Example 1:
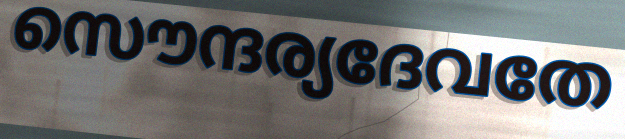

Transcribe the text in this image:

സൌന്ദര്യദേവതേ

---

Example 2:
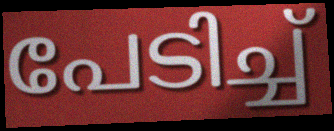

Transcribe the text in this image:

പേടിച്ച്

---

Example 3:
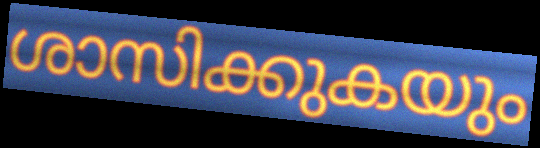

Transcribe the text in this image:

ശാസിക്കുകയും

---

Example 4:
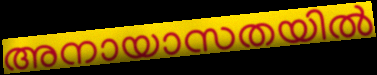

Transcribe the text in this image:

അനായാസതയിൽ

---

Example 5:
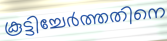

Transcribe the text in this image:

കൂട്ടിച്ചേർത്തതിനെ